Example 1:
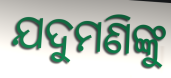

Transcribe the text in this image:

ଯଦୁମଣିଙ୍କୁ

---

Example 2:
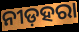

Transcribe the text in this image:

ନୀଡ଼ହରା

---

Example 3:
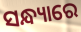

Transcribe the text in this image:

ସନ୍ଧ୍ୟାରେ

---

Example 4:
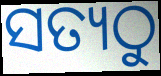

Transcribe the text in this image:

ସତ୍ୟଠୁ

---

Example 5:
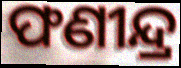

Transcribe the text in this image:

ଫଣୀନ୍ଦ୍ର